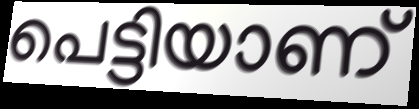
പെട്ടിയാണ്